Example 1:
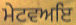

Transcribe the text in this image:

ਮੇਟਵਅਇ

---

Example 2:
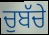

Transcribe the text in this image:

ਚੁਬੱਚੇ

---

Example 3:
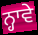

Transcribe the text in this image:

ਨ੍ਹਾਵੇ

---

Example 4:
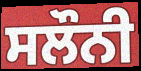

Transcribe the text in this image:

ਸਲੌਨੀ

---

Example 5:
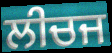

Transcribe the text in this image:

ਲੀਚਜ